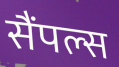
सैंपल्‍स